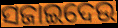
ସଜାଇଦେଉ